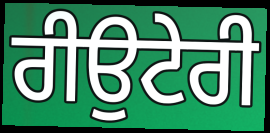
ਰੀਉਟੇਰੀ